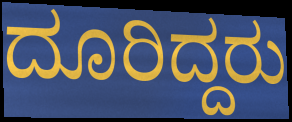
ದೂರಿದ್ದರು